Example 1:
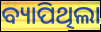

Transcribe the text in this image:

ବ୍ୟାପିଥିଲା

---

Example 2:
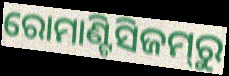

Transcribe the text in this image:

ରୋମାଣ୍ଟିସିଜମ୍‌ରୁ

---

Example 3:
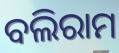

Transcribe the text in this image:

ବଲିରାମ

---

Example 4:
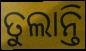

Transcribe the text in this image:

ତୁଲାନ୍ତି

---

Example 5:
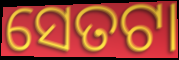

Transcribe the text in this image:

ସେତଟା